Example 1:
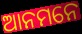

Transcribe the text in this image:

ଆନମନେ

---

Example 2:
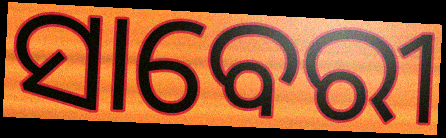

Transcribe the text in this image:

ସାବେରୀ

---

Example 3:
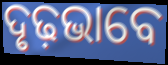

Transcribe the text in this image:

ଦୃଢ଼ଭାବେ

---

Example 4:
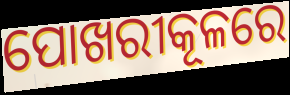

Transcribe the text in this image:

ପୋଖରୀକୂଳରେ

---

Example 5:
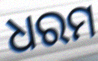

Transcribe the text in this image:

ଧରମ